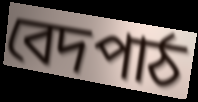
বেদপাঠ